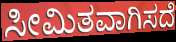
ಸೀಮಿತವಾಗಿಸದೆ